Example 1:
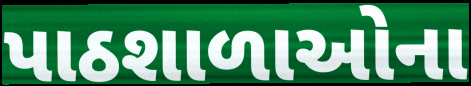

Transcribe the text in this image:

પાઠશાળાઓના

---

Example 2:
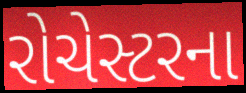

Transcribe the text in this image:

રોચેસ્ટરના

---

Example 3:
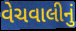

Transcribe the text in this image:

વેચવાલીનું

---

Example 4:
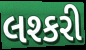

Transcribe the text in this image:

લશ્કરી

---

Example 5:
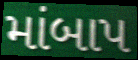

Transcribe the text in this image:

માંબાપ